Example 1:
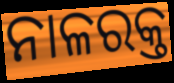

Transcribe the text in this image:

ନାଳରକ୍ତ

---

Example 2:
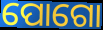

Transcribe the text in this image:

ପୋଗୋ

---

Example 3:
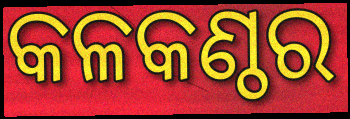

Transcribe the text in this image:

କଳକଣ୍ଠର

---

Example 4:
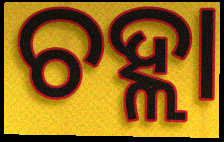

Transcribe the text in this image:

ଚହ୍ଲା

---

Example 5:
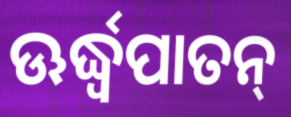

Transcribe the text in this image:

ଊର୍ଦ୍ଧ୍ବପାତନ୍